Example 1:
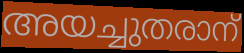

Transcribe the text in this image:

അയച്ചുതരാന്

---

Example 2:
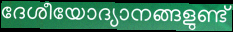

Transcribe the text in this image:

ദേശീയോദ്യാനങ്ങളുണ്ട്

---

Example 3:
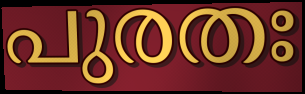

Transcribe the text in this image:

പുരതഃ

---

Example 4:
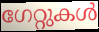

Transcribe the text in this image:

ഗേറ്റുകൾ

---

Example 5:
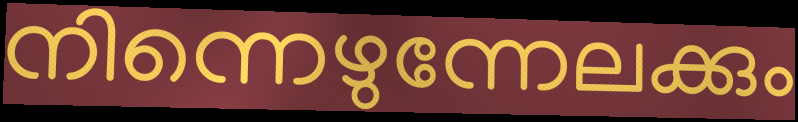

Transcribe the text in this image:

നിന്നെഴുന്നേലക്കും